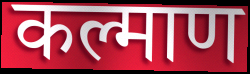
कल्माण